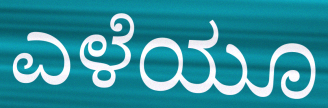
ಎಳೆಯೂ